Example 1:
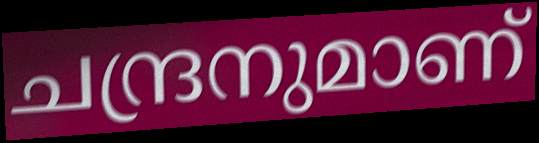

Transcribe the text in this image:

ചന്ദ്രനുമാണ്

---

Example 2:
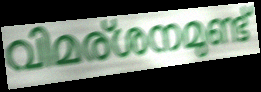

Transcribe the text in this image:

വിമര്ശനമുണ്ട്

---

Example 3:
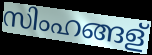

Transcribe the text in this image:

സിംഹങ്ങള്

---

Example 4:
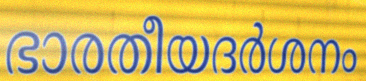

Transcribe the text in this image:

ഭാരതീയദർശനം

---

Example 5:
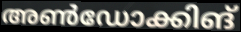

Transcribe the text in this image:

അൺഡോക്കിങ്